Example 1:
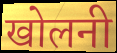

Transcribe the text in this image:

खोलनी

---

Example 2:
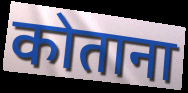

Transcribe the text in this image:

कोताना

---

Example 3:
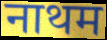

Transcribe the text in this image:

नाथम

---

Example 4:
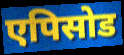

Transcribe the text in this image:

एपिसोड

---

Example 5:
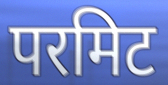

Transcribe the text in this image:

परमिट